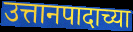
उत्तानपादाच्या